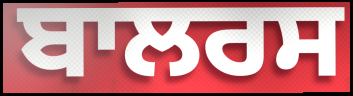
ਬਾਲਰਸ